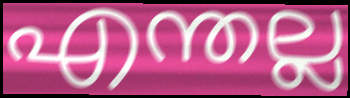
എന്തല്ല